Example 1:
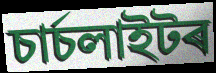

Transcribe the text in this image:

চাৰ্চলাইটৰ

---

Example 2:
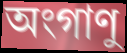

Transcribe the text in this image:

অংগাণু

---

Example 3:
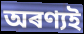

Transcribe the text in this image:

অৰণ্যই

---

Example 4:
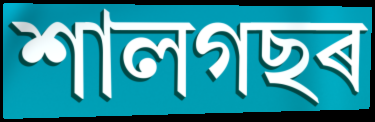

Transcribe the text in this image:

শালগছৰ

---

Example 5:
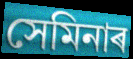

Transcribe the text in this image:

সেমিনাৰ